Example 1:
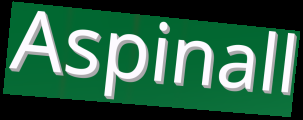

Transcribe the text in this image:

Aspinall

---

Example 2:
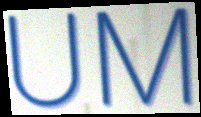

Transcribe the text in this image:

UM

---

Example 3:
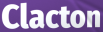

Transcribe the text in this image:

Clacton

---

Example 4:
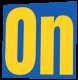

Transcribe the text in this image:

On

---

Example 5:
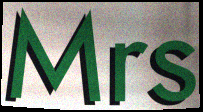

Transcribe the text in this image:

Mrs